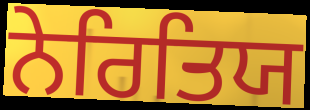
ਨੇਰਿਤਿਯ